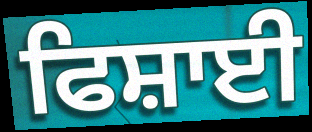
ਫਿਸ਼ਾਈ